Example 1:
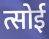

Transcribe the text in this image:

त्सोई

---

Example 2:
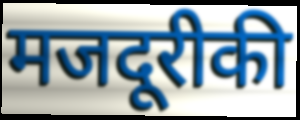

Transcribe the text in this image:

मजदूरीकी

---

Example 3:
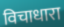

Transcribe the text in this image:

विचाधारा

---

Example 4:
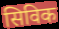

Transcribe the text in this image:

सिविक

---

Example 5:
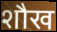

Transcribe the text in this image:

शौख